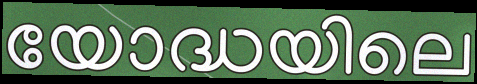
യോദ്ധയിലെ